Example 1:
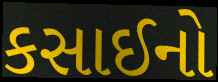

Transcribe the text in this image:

કસાઈનો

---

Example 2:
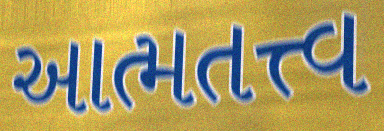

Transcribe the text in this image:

આત્મતત્ત્વ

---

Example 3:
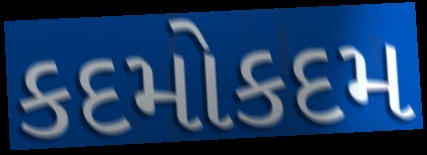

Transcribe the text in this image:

કદમોકદમ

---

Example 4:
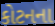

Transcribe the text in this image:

કોટનના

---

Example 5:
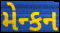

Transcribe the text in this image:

મેન્કન